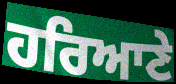
ਹਰਿਆਣੇ